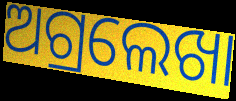
ଅଗ୍ରଲେଖା